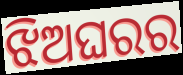
ଝିଅଘରର